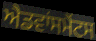
ਐਡਵਾਂਸਮੈਂਟਸ